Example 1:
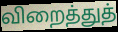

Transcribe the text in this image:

விறைத்துத்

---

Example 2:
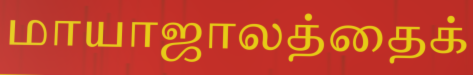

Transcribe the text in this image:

மாயாஜாலத்தைக்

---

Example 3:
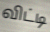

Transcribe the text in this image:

விட்டி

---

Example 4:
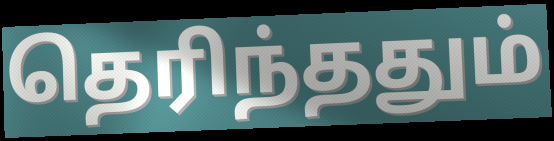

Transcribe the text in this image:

தெரிந்ததும்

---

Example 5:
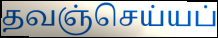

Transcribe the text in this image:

தவஞ்செய்யப்